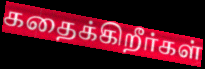
கதைக்கிறீர்கள்